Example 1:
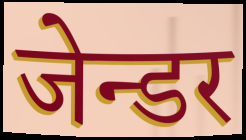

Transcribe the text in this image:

जेन्डर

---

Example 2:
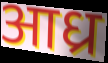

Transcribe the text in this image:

आध्र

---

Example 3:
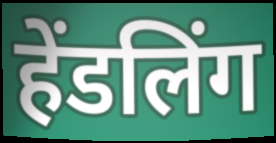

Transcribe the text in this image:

हेंडलिंग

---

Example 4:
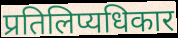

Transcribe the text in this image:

प्रतिलिप्यधिकार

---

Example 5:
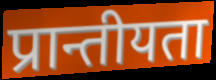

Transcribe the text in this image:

प्रान्तीयता